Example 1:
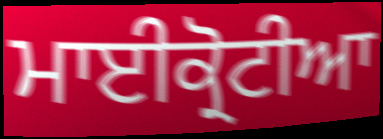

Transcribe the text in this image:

ਮਾਈਕ੍ਰੋਟੀਆ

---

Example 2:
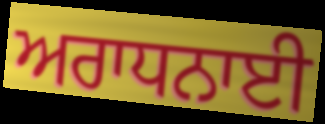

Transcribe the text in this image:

ਅਰਾਧਨਾਈ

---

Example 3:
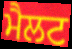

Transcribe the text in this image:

ਮੈਲਟ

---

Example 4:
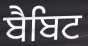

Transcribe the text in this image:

ਬੈਬਿਟ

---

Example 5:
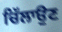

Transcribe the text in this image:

ਚਿੱਲਾਉਣ